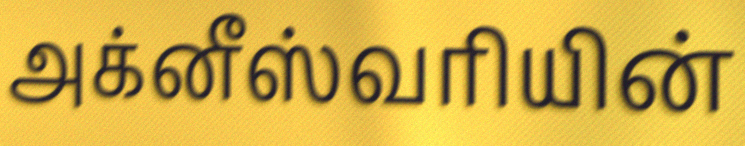
அக்னீஸ்வரியின்